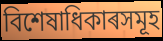
বিশেষাধিকাৰসমূহ